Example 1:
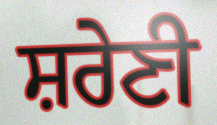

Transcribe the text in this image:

ਸ਼ਰੇਣੀ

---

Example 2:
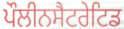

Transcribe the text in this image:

ਪੌਲੀਨਸੈਟਰੇਟਿਡ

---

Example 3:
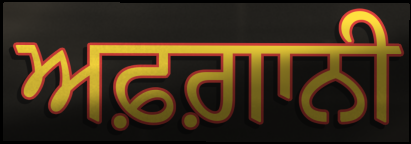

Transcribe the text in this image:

ਅਫ਼ਗ਼ਾਨੀ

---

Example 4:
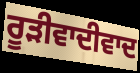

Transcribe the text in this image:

ਰੂੜੀਵਾਦੀਵਾਦ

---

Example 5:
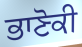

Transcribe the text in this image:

ਭਾਣੋਕੀ